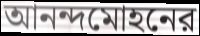
আনন্দমোহনের